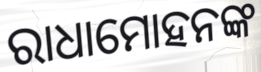
ରାଧାମୋହନଙ୍କ